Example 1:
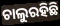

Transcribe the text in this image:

ଚାଲୁରହିଛି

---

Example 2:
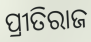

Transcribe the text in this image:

ପ୍ରୀତିରାଜ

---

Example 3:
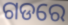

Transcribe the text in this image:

ଗଡରେ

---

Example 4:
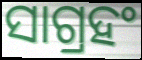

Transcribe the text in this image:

ସାଗ୍ରହଂ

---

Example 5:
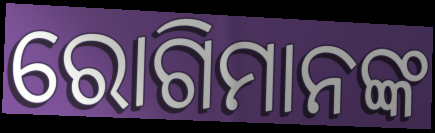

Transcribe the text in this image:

ରୋଗିମାନଙ୍କ